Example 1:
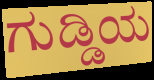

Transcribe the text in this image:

ಗುಡ್ಡಿಯ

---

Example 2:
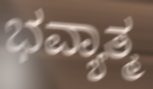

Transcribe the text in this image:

ಭವ್ಯಾತ್ಮ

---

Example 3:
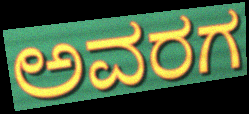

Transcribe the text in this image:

ಅವರಗ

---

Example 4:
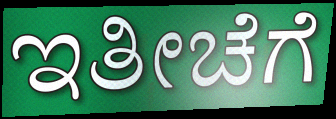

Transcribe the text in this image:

ಇತೀಚೆಗೆ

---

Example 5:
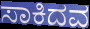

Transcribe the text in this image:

ಸಾಕಿದವ